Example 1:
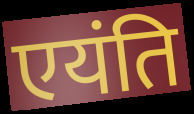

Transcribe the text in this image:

एयंति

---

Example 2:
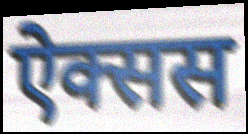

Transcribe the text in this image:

ऐक्सस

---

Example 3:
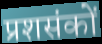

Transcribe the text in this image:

प्रशसंकों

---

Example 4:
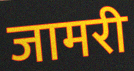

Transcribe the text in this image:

जामरी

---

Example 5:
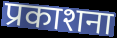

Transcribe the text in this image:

प्रकाशना